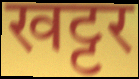
खट्टर